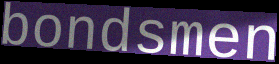
bondsmen